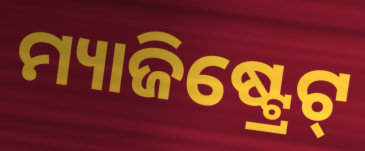
ମ୍ୟାଜିଷ୍ଟ୍ରେଟ୍